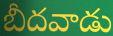
బీదవాడు